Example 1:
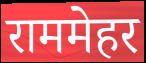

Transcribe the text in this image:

राममेहर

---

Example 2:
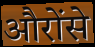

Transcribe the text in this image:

औरोंसे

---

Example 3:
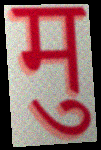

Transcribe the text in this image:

मु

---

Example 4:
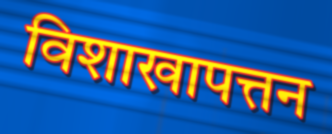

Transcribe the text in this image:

विशाखापत्तन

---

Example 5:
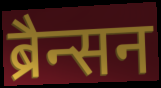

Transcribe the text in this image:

ब्रैन्सन